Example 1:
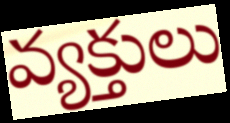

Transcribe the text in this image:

వ్యక్తులు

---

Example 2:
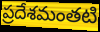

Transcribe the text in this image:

ప్రదేశమంతటి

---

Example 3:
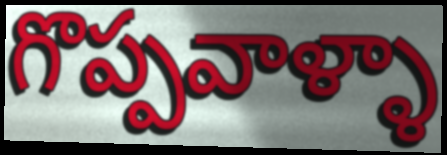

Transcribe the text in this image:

గొప్పవాళ్ళా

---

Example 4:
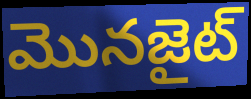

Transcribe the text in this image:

మొనజైట్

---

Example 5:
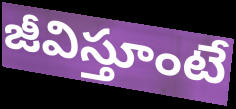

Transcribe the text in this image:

జీవిస్తూంటే